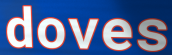
doves